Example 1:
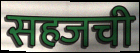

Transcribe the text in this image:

सहजची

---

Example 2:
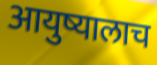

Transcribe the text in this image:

आयुष्यालाच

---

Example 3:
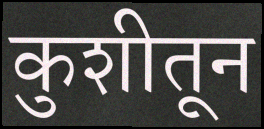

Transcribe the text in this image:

कुशीतून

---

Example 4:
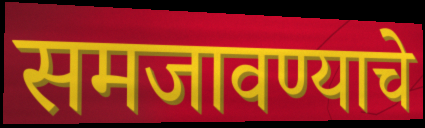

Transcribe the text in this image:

समजावण्याचे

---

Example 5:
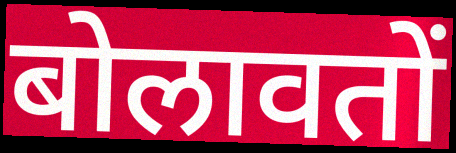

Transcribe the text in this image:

बोलावतों